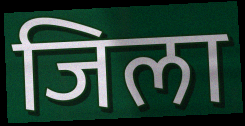
जिला